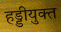
हड्डीयुक्त